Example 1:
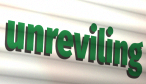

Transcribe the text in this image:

unreviling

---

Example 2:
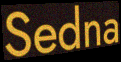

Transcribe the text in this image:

Sedna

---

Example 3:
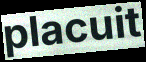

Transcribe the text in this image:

placuit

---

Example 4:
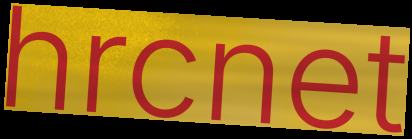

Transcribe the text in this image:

hrcnet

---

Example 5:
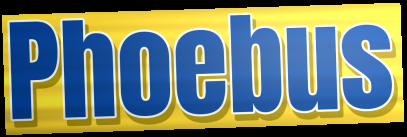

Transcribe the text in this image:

Phoebus